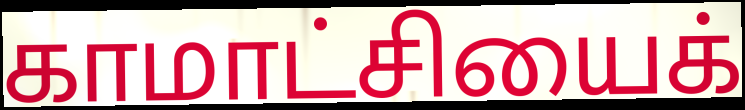
காமாட்சியைக்